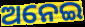
ଅନେଇ